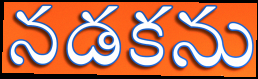
నడకను